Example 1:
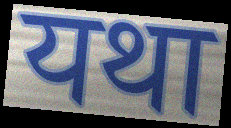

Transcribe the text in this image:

यथा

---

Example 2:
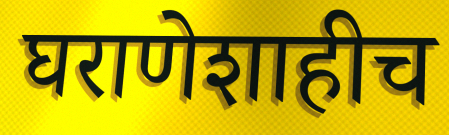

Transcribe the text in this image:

घराणेशाहीच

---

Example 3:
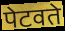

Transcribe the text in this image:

पेटवते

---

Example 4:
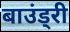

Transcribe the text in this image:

बाउंड्री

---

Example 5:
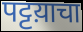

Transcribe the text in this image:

पट्टय़ाचा